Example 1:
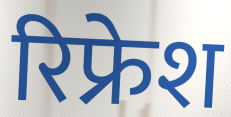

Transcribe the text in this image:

रिफ्रेश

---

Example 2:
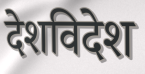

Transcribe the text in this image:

देशविदेश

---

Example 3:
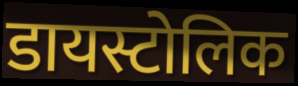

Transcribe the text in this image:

डायस्टोलिक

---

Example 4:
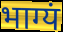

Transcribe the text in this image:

भाग्यं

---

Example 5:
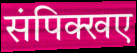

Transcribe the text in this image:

संपिक्खए